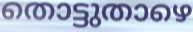
തൊട്ടുതാഴെ